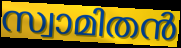
സ്വാമിതൻ